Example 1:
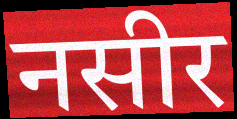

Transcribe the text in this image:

नसीर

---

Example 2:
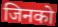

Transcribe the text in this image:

जिनको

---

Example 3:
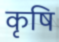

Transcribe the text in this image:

कृषि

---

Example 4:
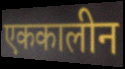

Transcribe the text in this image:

एककालीन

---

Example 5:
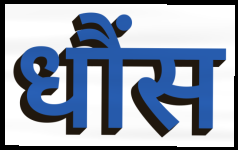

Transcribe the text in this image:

धौंस